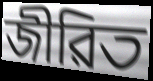
জীৱিত